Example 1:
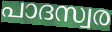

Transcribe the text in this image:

പാദസ്വര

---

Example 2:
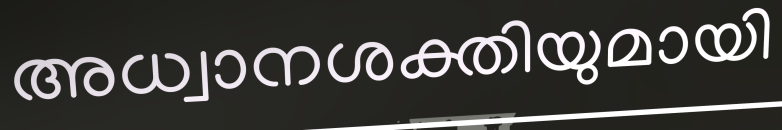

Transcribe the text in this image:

അധ്വാനശക്തിയുമായി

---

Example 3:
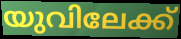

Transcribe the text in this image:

യുവിലേക്ക്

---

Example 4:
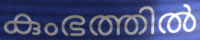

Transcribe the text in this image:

കുംഭത്തിൽ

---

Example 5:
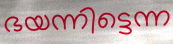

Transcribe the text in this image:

ഭയന്നിട്ടെന്ന